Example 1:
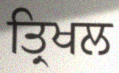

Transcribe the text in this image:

ਤ੍ਰਿਖਲ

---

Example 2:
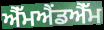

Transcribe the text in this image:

ਐੱਮਐਂਡਐੱਮ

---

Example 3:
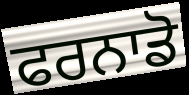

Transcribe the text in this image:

ਫਰਨਾਡੋ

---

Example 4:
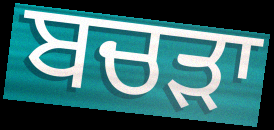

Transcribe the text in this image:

ਬਚੜਾ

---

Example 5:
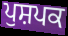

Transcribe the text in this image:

ਪੁਸ਼ਪਕ